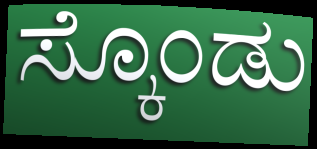
ಸ್ಕೊಂಡು